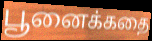
பூனைக்கதை